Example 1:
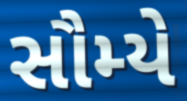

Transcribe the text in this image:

સૌમ્યે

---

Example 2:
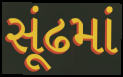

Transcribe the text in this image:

સૂંઢમાં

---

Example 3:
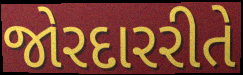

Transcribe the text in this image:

જોરદારરીતે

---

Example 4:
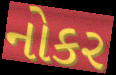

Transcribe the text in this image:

નોકર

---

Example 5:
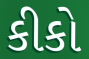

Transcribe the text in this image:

કીકો